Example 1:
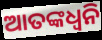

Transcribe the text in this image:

ଆତଙ୍କଧ୍ଵନି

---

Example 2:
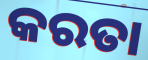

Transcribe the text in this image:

କରତା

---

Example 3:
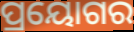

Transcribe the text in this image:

ପ୍ରୟୋଗର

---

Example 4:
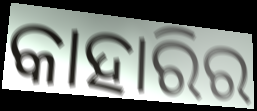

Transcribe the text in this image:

କାହାରିର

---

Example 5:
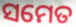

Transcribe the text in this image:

ସମେତ